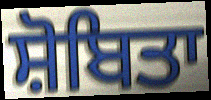
ਸ਼ੋਬਿਤਾ